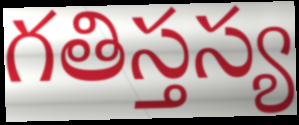
గతిస్తస్య